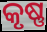
କୃଷ୍ଣ